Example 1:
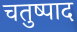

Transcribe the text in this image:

चतुष्पाद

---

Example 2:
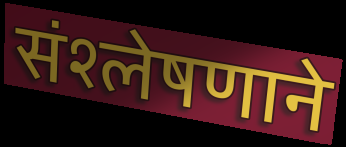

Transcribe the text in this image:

संश्लेषणाने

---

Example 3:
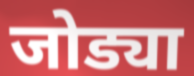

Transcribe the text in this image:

जोड्या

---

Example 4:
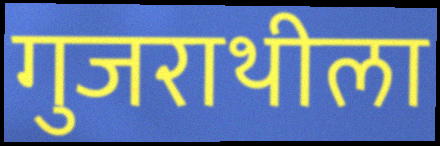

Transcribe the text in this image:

गुजराथीला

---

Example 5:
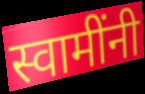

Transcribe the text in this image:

स्वामींनी